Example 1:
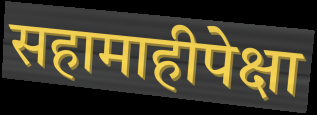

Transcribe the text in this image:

सहामाहीपेक्षा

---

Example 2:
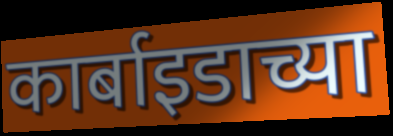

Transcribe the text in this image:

कार्बाइडाच्या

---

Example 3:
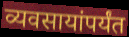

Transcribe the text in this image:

व्यवसायांपर्यंत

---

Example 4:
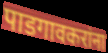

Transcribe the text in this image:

पाडगावकरांना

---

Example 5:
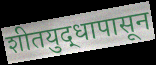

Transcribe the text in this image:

शीतयुद्धापासून